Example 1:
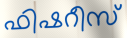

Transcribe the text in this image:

ഫിഷറീസ്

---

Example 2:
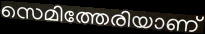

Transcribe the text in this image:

സെമിത്തേരിയാണ്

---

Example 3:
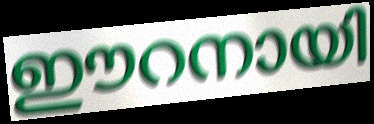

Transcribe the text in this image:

ഈറനായി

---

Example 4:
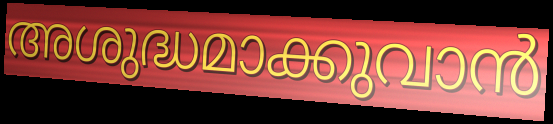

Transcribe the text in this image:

അശുദ്ധമാക്കുവാൻ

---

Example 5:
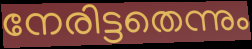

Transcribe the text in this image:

നേരിട്ടതെന്നും